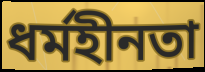
ধর্মহীনতা